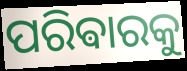
ପରିଵାରକୁ